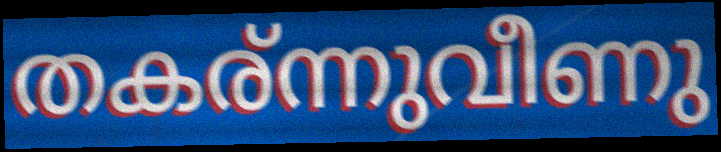
തകര്ന്നുവീണു